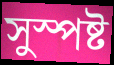
সুস্পষ্ট